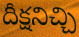
దీక్షనిచ్చి